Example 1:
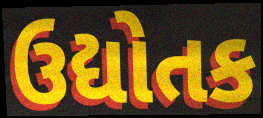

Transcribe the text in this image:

ઉદ્યોતક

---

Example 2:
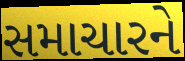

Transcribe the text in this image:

સમાચારને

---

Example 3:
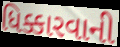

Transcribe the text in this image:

ધિક્કારવાની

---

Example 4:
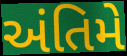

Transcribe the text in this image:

અંતિમે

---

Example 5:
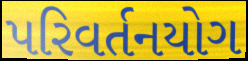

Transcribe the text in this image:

પરિવર્તનયોગ